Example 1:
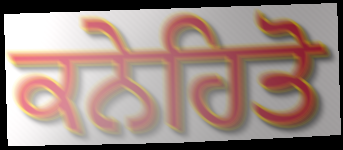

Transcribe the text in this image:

ਕਨੇਹਿਤੋ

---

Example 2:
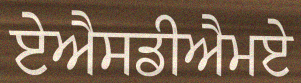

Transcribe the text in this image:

ਏਐਸਡੀਐਮਏ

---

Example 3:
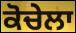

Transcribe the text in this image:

ਕੋਚੇਲਾ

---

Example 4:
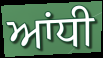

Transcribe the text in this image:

ਆਂਧੀ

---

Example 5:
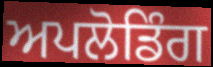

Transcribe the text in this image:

ਅਪਲੋਡਿੰਗ